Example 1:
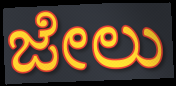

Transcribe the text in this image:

ಜೇಲು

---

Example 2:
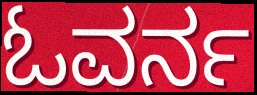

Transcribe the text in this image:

ಓವರ್ನ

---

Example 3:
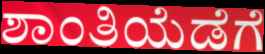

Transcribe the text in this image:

ಶಾಂತಿಯೆಡೆಗೆ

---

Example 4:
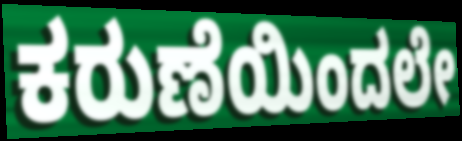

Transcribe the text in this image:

ಕರುಣೆಯಿಂದಲೇ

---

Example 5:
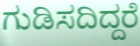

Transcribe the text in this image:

ಗುಡಿಸದಿದ್ದರೆ